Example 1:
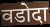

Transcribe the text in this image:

वडोदा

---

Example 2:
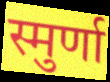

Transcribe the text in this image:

स्मुर्णा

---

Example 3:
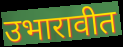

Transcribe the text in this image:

उभारावीत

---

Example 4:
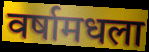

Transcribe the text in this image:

वर्षामधला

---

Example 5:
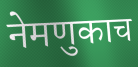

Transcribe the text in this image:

नेमणुकाच